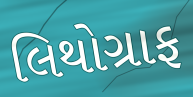
લિથોગ્રાફ